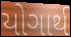
યોગાર્થ